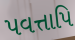
પવત્તાપિ